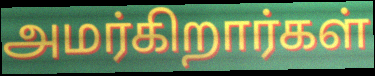
அமர்கிறார்கள்